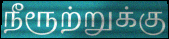
நீரூற்றுக்கு